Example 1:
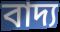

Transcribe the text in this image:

বাদ্য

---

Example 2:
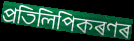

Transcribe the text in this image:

প্ৰতিলিপিকৰণৰ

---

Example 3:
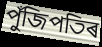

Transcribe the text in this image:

পুঁজিপতিৰ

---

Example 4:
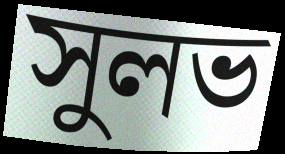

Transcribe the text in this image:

সুলভ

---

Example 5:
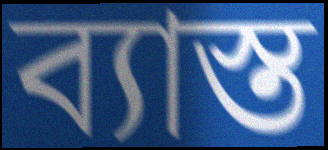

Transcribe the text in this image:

ব্যাস্ত